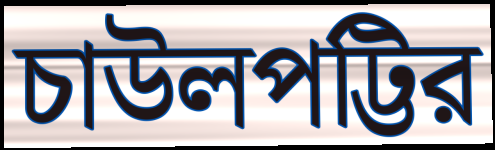
চাউলপট্টির